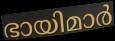
ഭായിമാർ